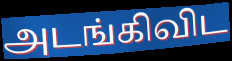
அடங்கிவிட